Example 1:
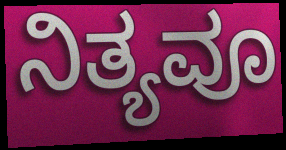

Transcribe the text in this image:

ನಿತ್ಯವೂ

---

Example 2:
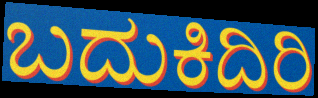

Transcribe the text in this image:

ಬದುಕಿದಿರಿ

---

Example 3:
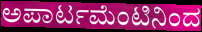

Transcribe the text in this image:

ಅಪಾರ್ಟಮೆಂಟಿನಿಂದ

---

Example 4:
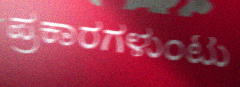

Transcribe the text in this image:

ಪ್ರಕಾರಗಳುಂಟು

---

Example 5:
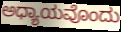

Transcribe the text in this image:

ಅಧ್ಯಾಯವೊಂದು